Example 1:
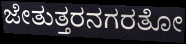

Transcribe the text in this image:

ಜೇತುತ್ತರನಗರತೋ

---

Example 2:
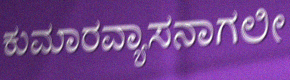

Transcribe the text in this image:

ಕುಮಾರವ್ಯಾಸನಾಗಲೀ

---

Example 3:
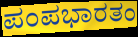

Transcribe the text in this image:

ಪಂಪಭಾರತಂ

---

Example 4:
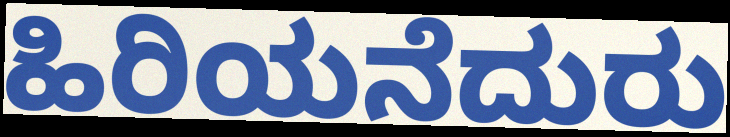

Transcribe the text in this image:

ಹಿರಿಯನೆದುರು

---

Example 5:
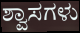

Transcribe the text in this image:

ಶ್ವಾಸಗಳು